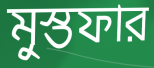
মুস্তফার